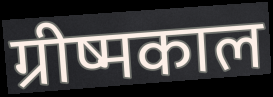
ग्रीष्मकाल